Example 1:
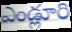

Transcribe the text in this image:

ఎండ్లూరి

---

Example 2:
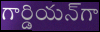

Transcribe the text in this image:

గార్డియన్‌గా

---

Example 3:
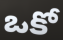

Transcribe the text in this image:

ఒకో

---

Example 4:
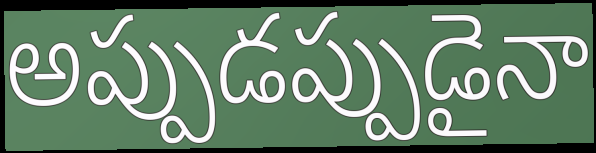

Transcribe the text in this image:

అప్పుడప్పుడైనా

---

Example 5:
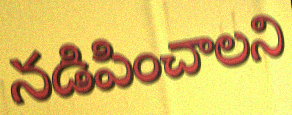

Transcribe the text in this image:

నడిపించాలని